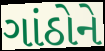
ગાંઠોને